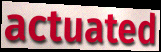
actuated